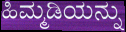
ಹಿಮ್ಮಡಿಯನ್ನು